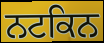
ਨਟਕਿਨ